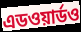
এডওয়ার্ডও